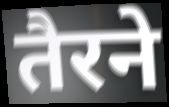
तैरने